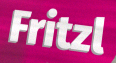
Fritzl